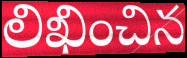
లిఖించిన